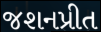
જશનપ્રીત